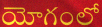
యోగంలో